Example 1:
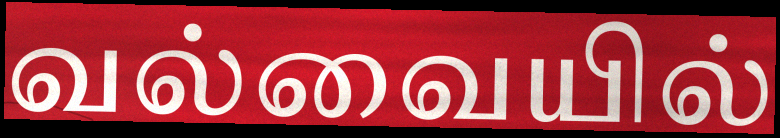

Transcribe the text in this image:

வல்வையில்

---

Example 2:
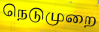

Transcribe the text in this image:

நெடுமுறை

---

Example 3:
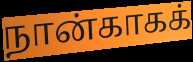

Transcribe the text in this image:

நான்காகக்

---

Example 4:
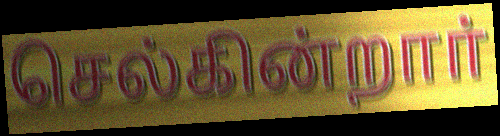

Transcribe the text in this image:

செல்கின்றார்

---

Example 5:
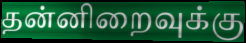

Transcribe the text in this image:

தன்னிறைவுக்கு